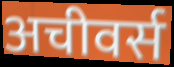
अचीवर्स